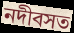
নদীবসত